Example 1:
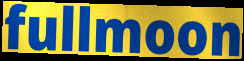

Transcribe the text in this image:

fullmoon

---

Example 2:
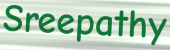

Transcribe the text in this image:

Sreepathy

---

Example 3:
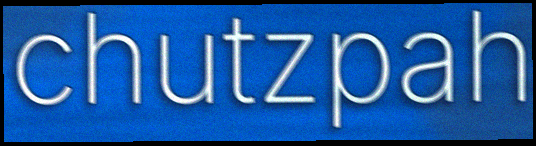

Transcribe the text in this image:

chutzpah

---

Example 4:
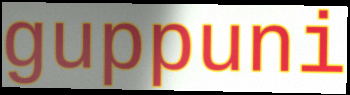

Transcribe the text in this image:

guppuni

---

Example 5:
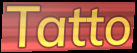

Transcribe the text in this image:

Tatto